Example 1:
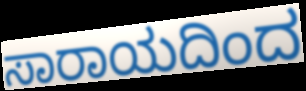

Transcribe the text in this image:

ಸಾರಾಯದಿಂದ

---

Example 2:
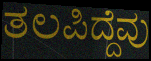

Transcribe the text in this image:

ತಲಪಿದ್ದೆವು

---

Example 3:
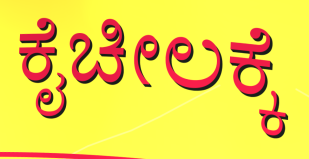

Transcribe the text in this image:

ಕೈಚೀಲಕ್ಕೆ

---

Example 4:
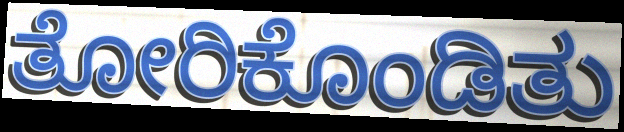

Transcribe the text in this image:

ತೋರಿಕೊಂಡಿತು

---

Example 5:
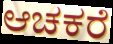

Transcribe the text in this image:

ಆಚಕರೆ